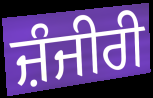
ਜ਼ੰਜੀਰੀ